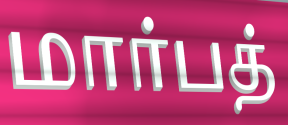
மார்பத்